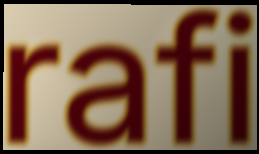
rafi